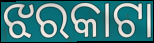
ଝରକାଟା